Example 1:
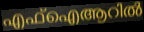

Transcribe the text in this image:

എഫ്ഐആറിൽ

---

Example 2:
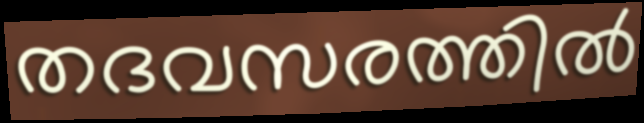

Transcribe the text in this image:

തദവസരത്തിൽ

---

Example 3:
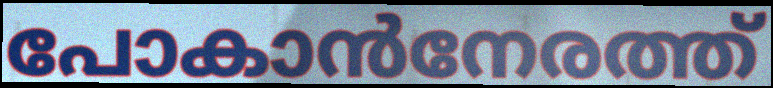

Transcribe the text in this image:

പോകാൻനേരത്ത്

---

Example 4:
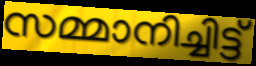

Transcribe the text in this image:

സമ്മാനിച്ചിട്ട്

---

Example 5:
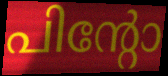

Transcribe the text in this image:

പിന്റോ